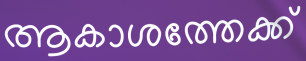
ആകാശത്തേക്ക്